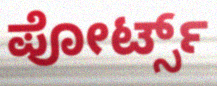
ಪೋರ್ಟ್ಸ್